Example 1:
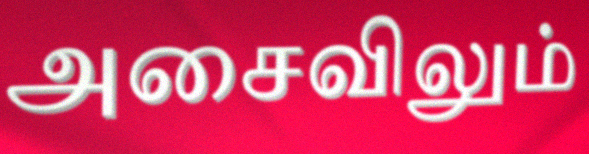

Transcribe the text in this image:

அசைவிலும்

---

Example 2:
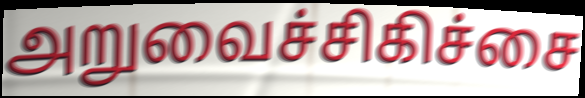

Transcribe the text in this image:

அறுவைச்சிகிச்சை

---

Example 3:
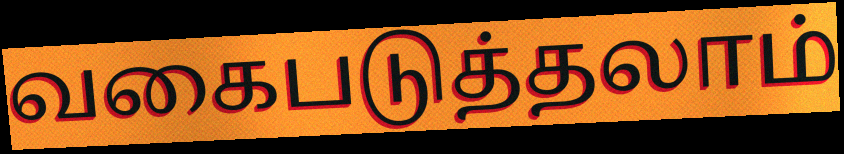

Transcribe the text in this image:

வகைபடுத்தலாம்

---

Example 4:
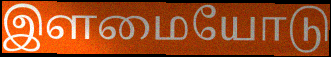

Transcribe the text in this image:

இளமையோடு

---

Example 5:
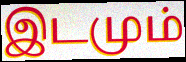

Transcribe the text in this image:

இடமும்